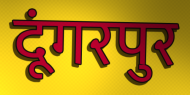
दूंगरपुर